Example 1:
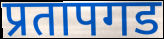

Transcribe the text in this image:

प्रतापगड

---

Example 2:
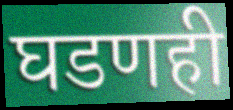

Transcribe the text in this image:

घडणही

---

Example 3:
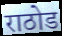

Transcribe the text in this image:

राठोड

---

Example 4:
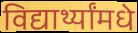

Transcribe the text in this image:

विद्यार्थ्यांमधे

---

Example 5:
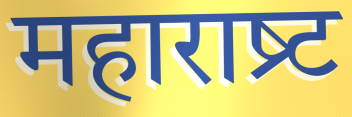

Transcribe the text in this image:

महाराष्र्ट